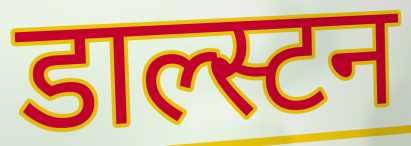
डाल्स्टन